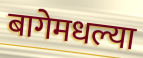
बागेमधल्या